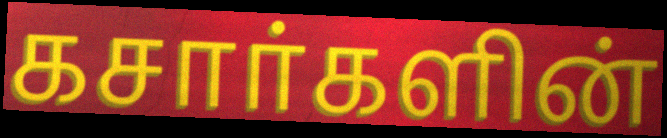
கசார்களின்